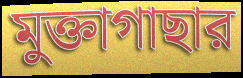
মুক্তাগাছার